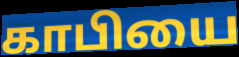
காபியை